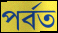
পৰ্বত